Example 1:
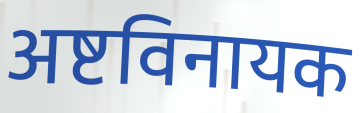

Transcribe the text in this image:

अष्टविनायक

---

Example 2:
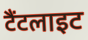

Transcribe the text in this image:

टैंटलाइट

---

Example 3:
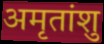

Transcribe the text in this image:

अमृतांशु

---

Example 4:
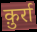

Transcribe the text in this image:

क़ुर्रा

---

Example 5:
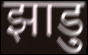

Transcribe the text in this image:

झाड़ु